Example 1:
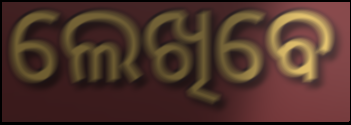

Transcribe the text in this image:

ଲେଖିବେ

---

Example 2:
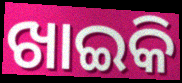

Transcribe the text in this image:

ଖାଇକି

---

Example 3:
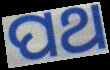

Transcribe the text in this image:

ପଥ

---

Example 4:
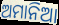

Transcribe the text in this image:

ଅମାନିଆ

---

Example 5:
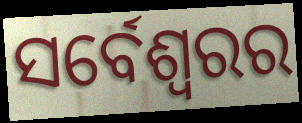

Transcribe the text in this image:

ସର୍ବେଶ୍ୱରର